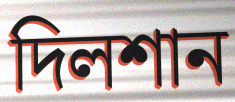
দিলশান